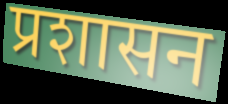
प्रशासन